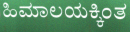
ಹಿಮಾಲಯಕ್ಕಿಂತ